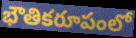
భౌతికరూపంలో